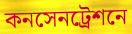
কনসেনট্রেশনে